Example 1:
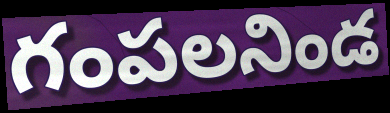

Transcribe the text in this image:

గంపలనిండ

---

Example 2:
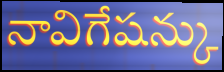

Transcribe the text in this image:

నావిగేషన్కు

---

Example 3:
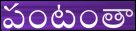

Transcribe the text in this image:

పంటంతా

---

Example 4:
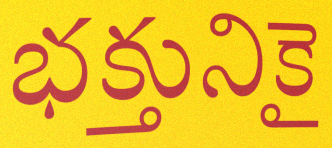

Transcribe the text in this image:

భక్తునికై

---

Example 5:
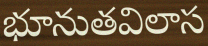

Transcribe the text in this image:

భూనుతవిలాస